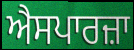
ਐਸਪਾਰਜ਼ਾ